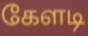
கேளடி